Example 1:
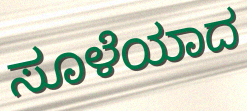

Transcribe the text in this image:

ಸೂಳೆಯಾದ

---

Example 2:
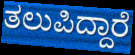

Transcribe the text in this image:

ತಲುಪಿದ್ದಾರೆ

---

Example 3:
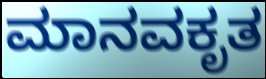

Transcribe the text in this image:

ಮಾನವಕೃತ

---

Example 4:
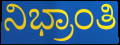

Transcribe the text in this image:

ನಿಭ್ರಾಂತಿ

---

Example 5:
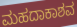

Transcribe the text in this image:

ಮಹದಾಕಾಶವ